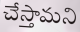
చేస్తామని